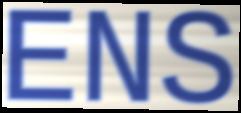
ENS